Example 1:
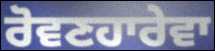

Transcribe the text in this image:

ਰੋਵਣਹਾਰੇਵਾ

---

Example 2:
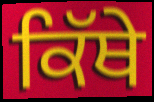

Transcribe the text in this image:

ਕਿੱਥੇ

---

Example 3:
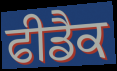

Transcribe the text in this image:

ਫੀਡੈਕ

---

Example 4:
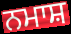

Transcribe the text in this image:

ਨਮਾਸ਼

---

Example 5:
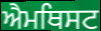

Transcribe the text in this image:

ਐਮਥਿਸਟ